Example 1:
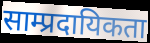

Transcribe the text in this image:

साम्प्रदायिकता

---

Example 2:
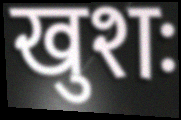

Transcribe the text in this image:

खुशः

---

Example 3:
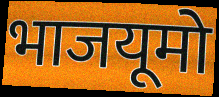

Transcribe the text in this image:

भाजयूमो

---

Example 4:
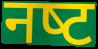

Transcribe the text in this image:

नष्‍ट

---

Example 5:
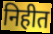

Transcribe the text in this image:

निहीत